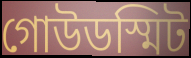
গোউডস্মিট